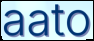
aato